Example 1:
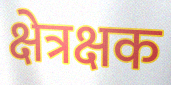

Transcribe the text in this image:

क्षेत्रक्षक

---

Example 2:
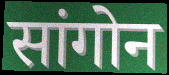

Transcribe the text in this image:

सांगोन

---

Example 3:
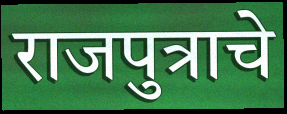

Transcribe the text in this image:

राजपुत्राचे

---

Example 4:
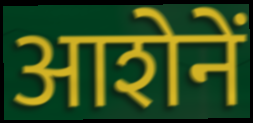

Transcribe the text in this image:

आशेनें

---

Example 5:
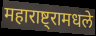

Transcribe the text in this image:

महाराष्ट्रामधले